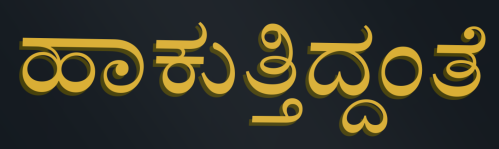
ಹಾಕುತ್ತಿದ್ದಂತೆ